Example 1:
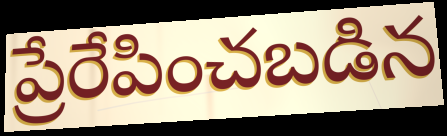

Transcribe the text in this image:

ప్రేరేపించబడిన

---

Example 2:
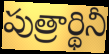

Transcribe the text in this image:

పుత్రార్థినీ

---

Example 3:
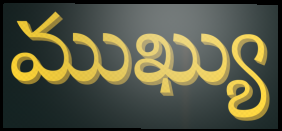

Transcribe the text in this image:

ముఖ్యు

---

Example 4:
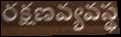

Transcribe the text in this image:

రక్షణవ్యవస్థ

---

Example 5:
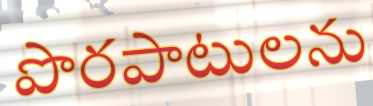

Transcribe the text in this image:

పొరపాటులను